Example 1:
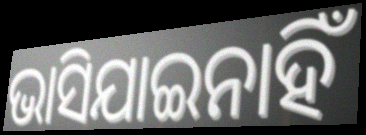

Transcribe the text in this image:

ଭାସିଯାଇନାହିଁ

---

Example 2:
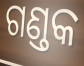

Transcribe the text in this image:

ଗଣ୍ଡକ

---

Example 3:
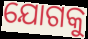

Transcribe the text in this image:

ଯୋଗକୁ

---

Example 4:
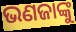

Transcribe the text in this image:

ଭଣଜାଙ୍କୁ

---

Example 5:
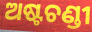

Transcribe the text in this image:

ଅଷ୍ଟଚଣ୍ଡୀ